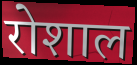
रोशाल